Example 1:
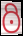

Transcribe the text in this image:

ఠి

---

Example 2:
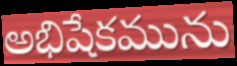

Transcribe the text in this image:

అభిషేకమును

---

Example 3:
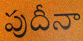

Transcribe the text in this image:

పుదీనా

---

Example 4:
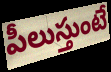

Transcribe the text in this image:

పీలుస్తుంటే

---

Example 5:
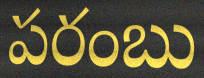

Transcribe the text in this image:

పరంబు